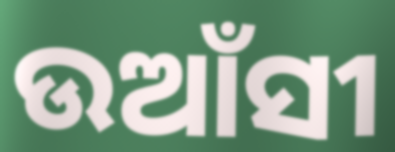
ଉଆଁସୀ